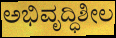
ಅಭಿವೃದ್ಧಿಶೀಲ